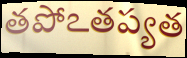
తపోఽతప్యత